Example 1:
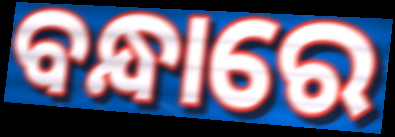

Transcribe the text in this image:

ବନ୍ଧାରେ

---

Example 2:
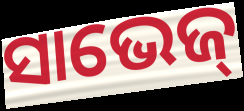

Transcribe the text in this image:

ସାଭେଜ୍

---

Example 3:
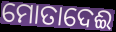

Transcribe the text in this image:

ମୋତାଦେଈ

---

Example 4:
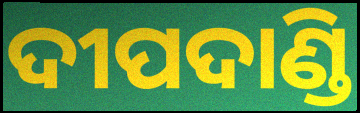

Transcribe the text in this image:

ଦୀପଦାଣ୍ଡି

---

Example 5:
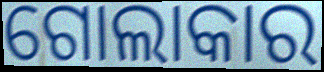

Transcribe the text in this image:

ଗୋଲାକାର